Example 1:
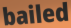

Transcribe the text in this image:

bailed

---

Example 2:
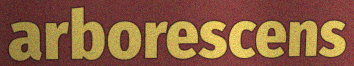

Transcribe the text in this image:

arborescens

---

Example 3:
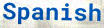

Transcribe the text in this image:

Spanish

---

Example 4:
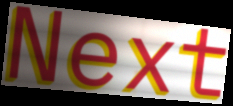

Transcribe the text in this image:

Next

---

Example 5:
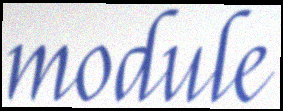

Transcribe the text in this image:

module